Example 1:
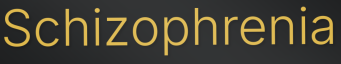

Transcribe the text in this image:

Schizophrenia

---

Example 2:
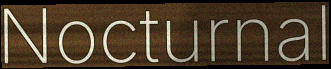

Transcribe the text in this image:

Nocturnal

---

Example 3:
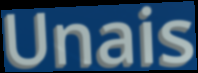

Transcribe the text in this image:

Unais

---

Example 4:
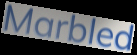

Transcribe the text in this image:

Marbled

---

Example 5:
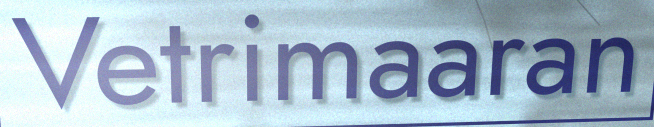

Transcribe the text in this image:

Vetrimaaran